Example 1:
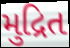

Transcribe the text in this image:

મુદ્રિત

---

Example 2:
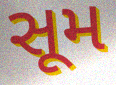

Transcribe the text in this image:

સૂમ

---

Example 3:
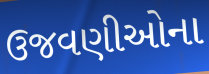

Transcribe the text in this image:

ઉજવણીઓના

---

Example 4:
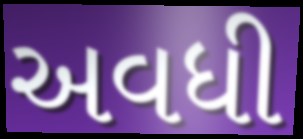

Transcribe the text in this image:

અવધી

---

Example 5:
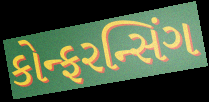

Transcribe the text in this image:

કોન્ફરન્સિંગ